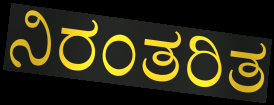
ನಿರಂತರಿತ